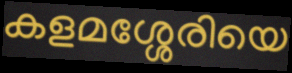
കളമശ്ശേരിയെ